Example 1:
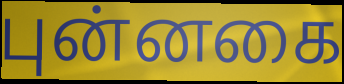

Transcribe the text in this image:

புன்னகை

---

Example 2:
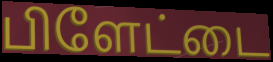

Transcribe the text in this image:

பிளேட்டை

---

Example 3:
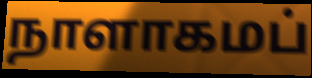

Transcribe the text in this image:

நாளாகமப்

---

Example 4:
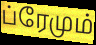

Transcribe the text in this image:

ப்ரேமும்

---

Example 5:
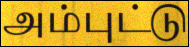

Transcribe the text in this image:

அம்புட்டு